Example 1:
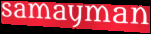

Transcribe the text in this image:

samayman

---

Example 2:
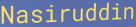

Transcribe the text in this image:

Nasiruddin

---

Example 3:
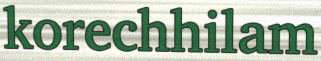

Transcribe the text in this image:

korechhilam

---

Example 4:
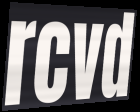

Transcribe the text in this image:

rcvd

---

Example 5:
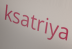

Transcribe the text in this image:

ksatriya